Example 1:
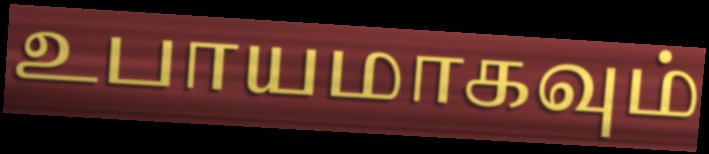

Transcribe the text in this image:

உபாயமாகவும்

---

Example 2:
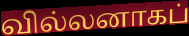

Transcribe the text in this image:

வில்லனாகப்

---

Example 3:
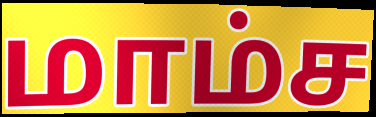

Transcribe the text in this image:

மாம்ச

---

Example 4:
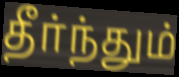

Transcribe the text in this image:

தீர்ந்தும்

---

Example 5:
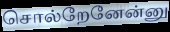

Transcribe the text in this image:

சொல்றேனேன்னு